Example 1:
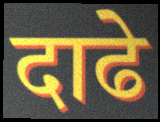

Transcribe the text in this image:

दाढे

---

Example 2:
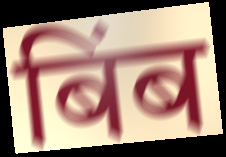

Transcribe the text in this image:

बिंब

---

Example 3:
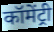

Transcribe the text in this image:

कॉमेंट्री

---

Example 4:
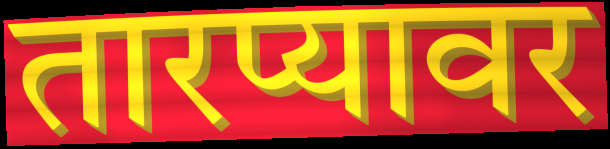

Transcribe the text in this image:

तारप्यावर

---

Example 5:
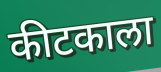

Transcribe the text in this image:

कीटकाला